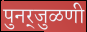
पुनर्जुळणी